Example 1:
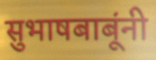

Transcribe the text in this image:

सुभाषबाबूंनी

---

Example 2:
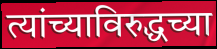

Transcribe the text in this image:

त्यांच्याविरुद्धच्या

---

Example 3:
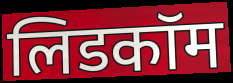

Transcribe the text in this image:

लिडकॉम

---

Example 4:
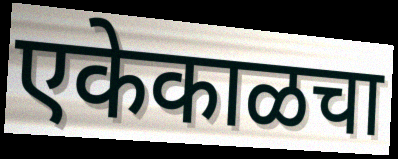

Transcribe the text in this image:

एकेकाळचा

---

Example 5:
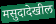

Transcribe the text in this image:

मसुदादेखील